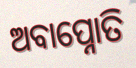
ଅବାପ୍ନୋତି